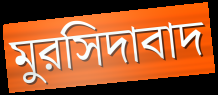
মুরসিদাবাদ